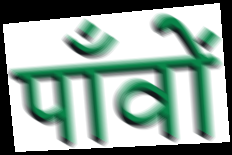
पाँवों